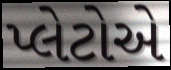
પ્લેટોએ